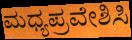
ಮಧ್ಯಪ್ರವೇಶಿಸಿ